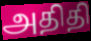
அதிதி